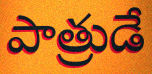
పాత్రుడే